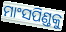
ମାଂସପିଣ୍ଡକୁ